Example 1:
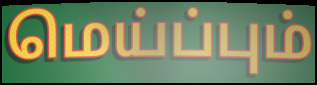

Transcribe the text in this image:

மெய்ப்பும்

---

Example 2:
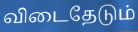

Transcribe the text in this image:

விடைதேடும்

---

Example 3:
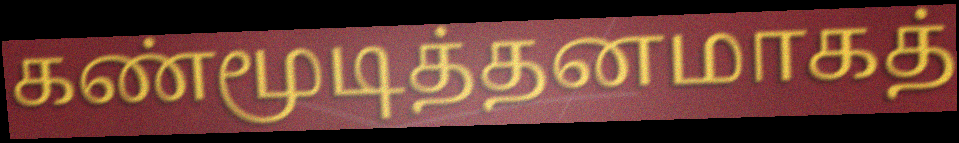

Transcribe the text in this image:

கண்மூடித்தனமாகத்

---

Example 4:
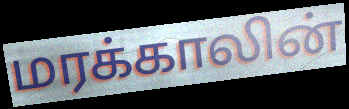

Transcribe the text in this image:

மரக்காலின்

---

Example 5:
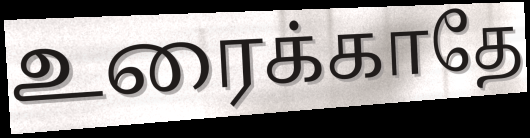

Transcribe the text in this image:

உரைக்காதே